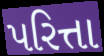
પરિત્તા